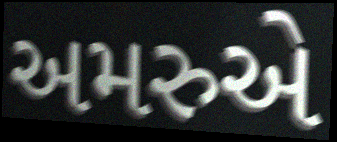
અમરુએ